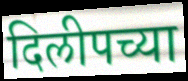
दिलीपच्या